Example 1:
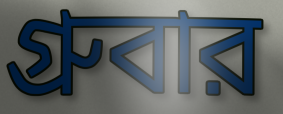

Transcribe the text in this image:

গ্রুবার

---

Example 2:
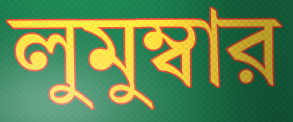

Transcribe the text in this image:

লুমুম্বার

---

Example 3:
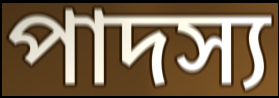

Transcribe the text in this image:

পাদস্য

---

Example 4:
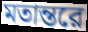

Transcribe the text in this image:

মতান্তরে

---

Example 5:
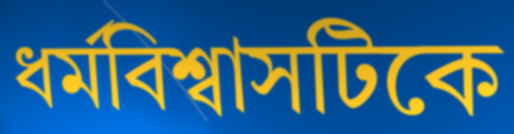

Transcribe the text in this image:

ধর্মবিশ্বাসটিকে